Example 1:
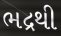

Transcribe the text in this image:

ભદ્રથી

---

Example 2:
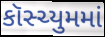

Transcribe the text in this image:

કૉસ્ચ્યુમમાં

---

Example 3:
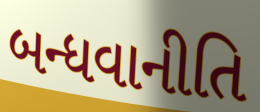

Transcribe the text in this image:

બન્ધવાનીતિ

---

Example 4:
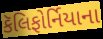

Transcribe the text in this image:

કૅલિફોર્નિયાના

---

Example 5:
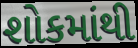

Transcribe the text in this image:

શોકમાંથી